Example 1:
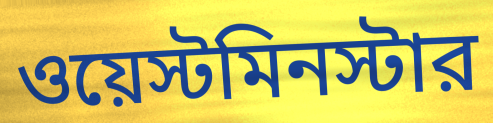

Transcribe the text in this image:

ওয়েস্টমিনস্টার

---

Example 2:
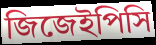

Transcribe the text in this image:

জিজেইপিসি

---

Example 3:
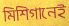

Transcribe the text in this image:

মিশিগানেই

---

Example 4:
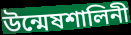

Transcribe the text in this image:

উন্মেষশালিনী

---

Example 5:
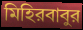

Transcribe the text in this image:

মিহিরবাবুর